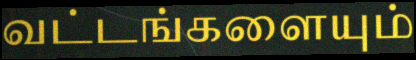
வட்டங்களையும்